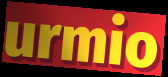
urmio